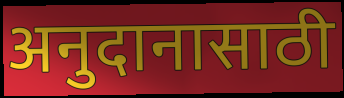
अनुदानासाठी